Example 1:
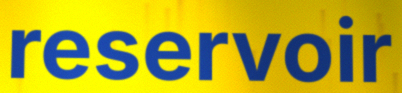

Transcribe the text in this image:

reservoir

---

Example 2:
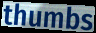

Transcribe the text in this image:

thumbs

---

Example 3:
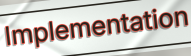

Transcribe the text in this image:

Implementation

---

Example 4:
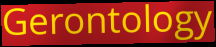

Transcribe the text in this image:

Gerontology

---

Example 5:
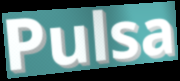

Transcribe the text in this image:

Pulsa